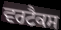
ਵਰਟੈਕਸ